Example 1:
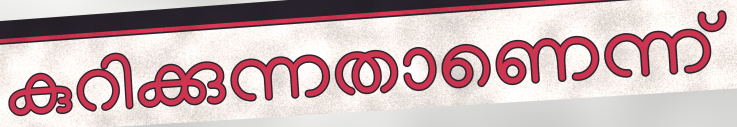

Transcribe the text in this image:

കുറിക്കുന്നതാണെന്ന്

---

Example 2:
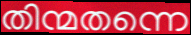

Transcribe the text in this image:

തിന്മതന്നെ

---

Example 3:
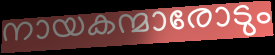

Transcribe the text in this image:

നായകന്മാരോടും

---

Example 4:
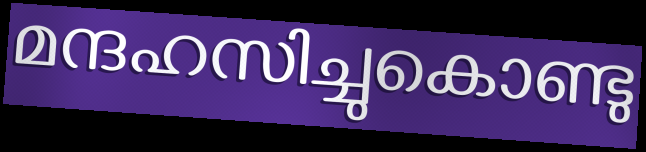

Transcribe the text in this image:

മന്ദഹസിച്ചുകൊണ്ടു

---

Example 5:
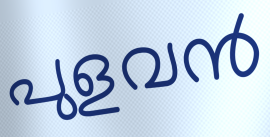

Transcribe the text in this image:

പുളവൻ